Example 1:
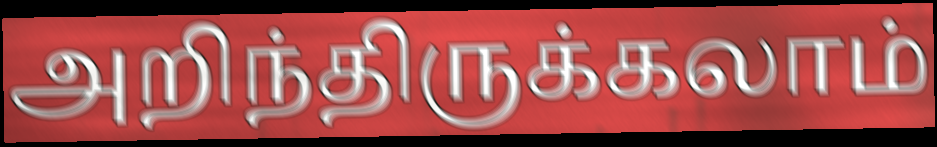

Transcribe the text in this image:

அறிந்திருக்கலாம்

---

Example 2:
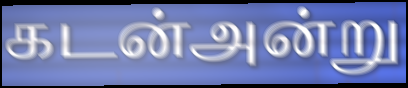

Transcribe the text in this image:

கடன்அன்று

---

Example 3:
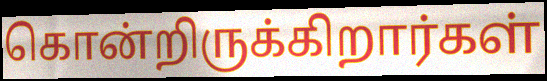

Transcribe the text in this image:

கொன்றிருக்கிறார்கள்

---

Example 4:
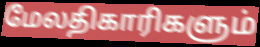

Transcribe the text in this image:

மேலதிகாரிகளும்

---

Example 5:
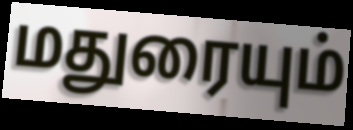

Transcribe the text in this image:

மதுரையும்